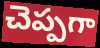
చెప్పగా